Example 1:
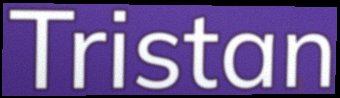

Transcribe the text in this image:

Tristan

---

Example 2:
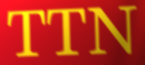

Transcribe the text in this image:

TTN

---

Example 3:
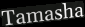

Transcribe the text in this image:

Tamasha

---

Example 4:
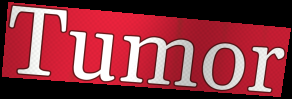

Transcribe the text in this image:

Tumor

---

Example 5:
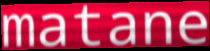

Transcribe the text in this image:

matane